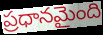
ప్రధానమైంది